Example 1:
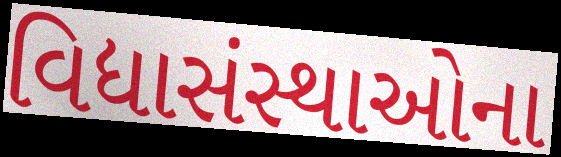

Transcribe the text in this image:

વિદ્યાસંસ્થાઓના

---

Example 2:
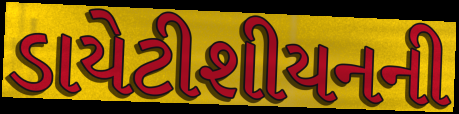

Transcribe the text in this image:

ડાયેટીશીયનની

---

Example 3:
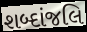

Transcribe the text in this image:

શબ્દાંજલિ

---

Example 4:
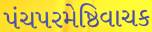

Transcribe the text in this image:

પંચપરમેષ્ઠિવાચક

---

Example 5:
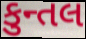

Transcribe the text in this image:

કુન્તલ